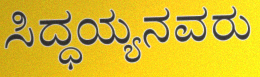
ಸಿದ್ಧಯ್ಯನವರು